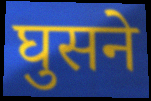
घुसने